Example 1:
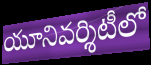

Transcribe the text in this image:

యూనివర్శిటీలో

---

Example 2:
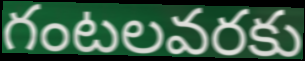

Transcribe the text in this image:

గంటలవరకు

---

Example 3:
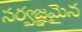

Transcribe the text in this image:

సర్వజ్ఞమైన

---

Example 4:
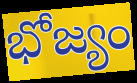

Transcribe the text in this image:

భోజ్యం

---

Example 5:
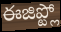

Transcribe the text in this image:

ఈజిప్ట్లో